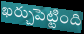
ఖర్చుపెట్టింది